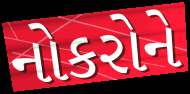
નોકરોને